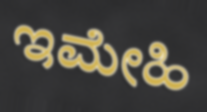
ಇಮೇಹಿ